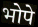
भोपे